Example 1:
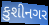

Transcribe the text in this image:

કુશીનગર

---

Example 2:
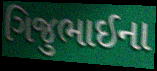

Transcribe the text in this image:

ગિજુભાઈના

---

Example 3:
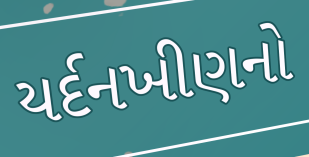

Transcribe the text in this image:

યર્દનખીણનો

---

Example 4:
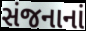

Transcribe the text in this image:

સંજનાનાં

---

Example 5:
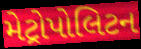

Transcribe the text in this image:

મેટ્રોપોલિટન